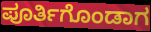
ಪೂರ್ತಿಗೊಂಡಾಗ